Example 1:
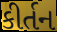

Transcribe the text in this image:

કીર્તન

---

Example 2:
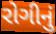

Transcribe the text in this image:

રોગીનું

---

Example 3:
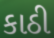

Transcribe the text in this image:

કાઠી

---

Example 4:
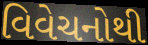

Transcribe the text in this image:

વિવેચનોથી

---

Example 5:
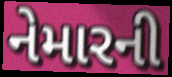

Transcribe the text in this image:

નેમારની